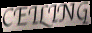
CEILING